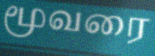
மூவரை